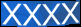
XXXX